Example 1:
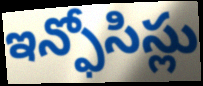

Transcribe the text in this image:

ఇన్ఫోసిస్లు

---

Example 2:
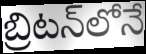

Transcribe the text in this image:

బ్రిటన్‌లోనే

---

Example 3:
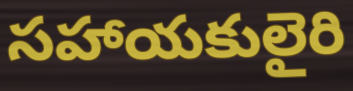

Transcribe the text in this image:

సహాయకులైరి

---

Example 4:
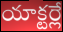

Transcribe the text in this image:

యాక్టర్లే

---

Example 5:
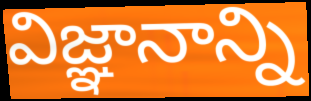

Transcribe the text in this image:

విజ్ఞానాన్ని